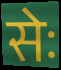
सेः